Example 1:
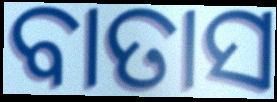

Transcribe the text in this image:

ବାତାସ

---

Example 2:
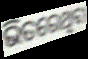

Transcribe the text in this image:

ଭିତରେଥିବା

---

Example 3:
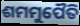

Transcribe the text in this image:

ଶମମୁପୈତି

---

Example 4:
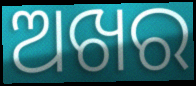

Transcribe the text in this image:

ଅଖର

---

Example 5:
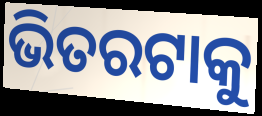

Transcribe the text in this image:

ଭିତରଟାକୁ